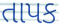
તાપક